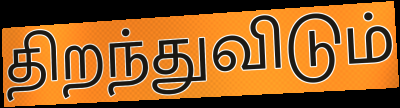
திறந்துவிடும்